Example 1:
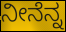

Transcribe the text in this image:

ನೀನೆನ್ನ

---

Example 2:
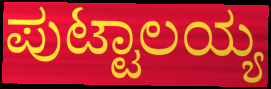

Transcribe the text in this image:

ಪುಟ್ಟಾಲಯ್ಯ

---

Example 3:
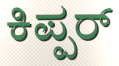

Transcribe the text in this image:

ಕಿಪ್ಪರ್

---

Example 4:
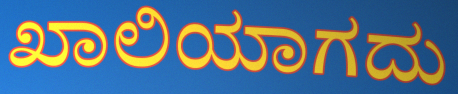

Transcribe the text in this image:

ಖಾಲಿಯಾಗದು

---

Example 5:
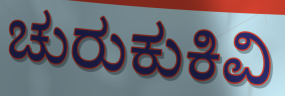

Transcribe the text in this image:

ಚುರುಕುಕಿವಿ